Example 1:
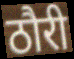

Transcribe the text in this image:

ठौरी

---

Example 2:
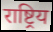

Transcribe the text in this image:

राष्ट्रिय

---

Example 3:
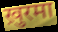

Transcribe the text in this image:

ख़ुरमा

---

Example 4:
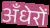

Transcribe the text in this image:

अँधेरों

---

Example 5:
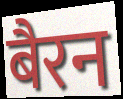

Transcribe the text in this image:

बैरन